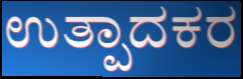
ಉತ್ಪಾದಕರ